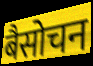
बैसोचन